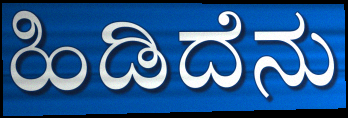
ಹಿಡಿದೆನು